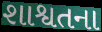
શાશ્વતના